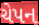
ચેપન